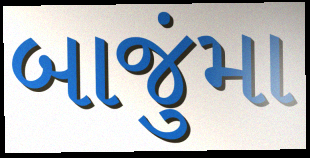
બાજુંમા